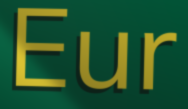
Eur